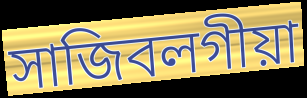
সাজিবলগীয়া